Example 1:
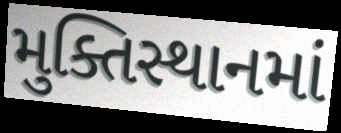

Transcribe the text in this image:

મુક્તિસ્થાનમાં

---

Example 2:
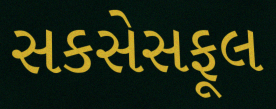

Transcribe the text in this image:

સકસેસફૂલ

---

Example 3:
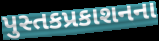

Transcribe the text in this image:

પુસ્તકપ્રકાશનના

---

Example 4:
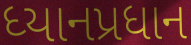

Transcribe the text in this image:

ધ્યાનપ્રધાન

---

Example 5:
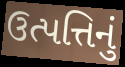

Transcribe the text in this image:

ઉત્પત્તિનું